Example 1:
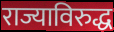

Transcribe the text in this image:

राज्याविरुद्ध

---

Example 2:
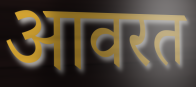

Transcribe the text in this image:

आवरत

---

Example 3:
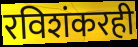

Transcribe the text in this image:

रविशंकरही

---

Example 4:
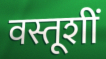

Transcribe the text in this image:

वस्तूशीं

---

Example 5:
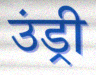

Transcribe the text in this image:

उंड्री